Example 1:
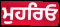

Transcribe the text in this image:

ਮੁਹਰਿਓ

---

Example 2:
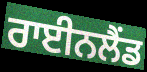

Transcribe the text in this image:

ਰਾਈਨਲੈਂਡ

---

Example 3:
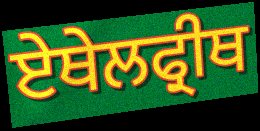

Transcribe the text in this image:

ਏਥੇਲਫ੍ਰੀਥ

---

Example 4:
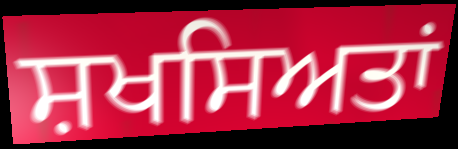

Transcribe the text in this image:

ਸ਼ਖਸਿਅਤਾਂ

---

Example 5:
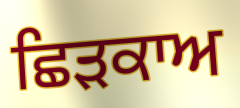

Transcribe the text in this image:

ਛਿੜਕਾਅ